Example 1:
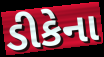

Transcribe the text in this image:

ડીકેના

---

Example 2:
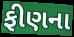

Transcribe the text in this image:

ફીણના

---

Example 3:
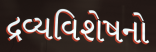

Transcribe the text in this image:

દ્રવ્યવિશેષનો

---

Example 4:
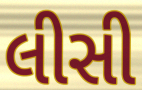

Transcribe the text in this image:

લીસી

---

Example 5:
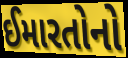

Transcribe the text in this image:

ઈમારતોનો